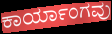
ಕಾರ್ಯಾಂಗವು